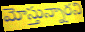
మోస్తున్నారని